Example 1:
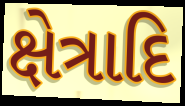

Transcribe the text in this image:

ક્ષેત્રાદિ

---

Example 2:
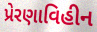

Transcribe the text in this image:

પ્રેરણાવિહીન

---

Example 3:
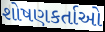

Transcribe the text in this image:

શોષણકર્તાઓ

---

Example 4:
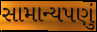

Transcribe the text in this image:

સામાન્યપણું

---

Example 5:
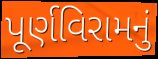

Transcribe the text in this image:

પૂર્ણવિરામનું